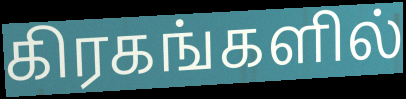
கிரகங்களில்